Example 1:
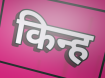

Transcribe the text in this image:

किन्ह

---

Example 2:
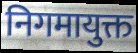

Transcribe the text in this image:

निगमायुक्त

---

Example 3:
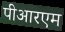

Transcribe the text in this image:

पीआरएम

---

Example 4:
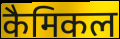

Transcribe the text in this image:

कैमिकल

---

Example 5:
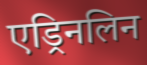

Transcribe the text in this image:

एड्रिनलिन